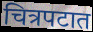
चित्रपटात